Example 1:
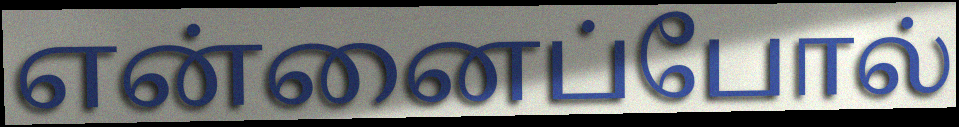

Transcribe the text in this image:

என்னைப்போல்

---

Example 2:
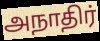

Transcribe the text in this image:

அநாதிர்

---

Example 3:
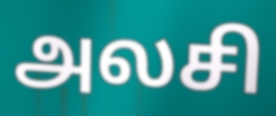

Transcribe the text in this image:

அலசி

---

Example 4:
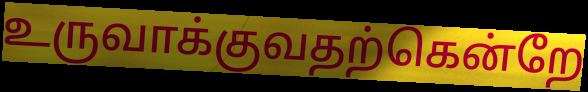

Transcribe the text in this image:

உருவாக்குவதற்கென்றே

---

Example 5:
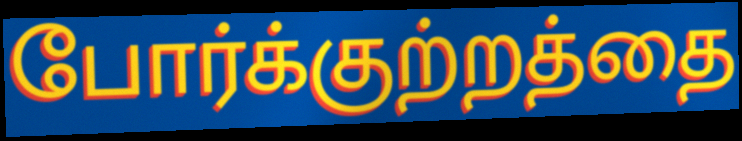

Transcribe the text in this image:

போர்க்குற்றத்தை